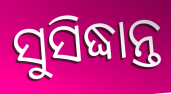
ସୁସିଦ୍ଧାନ୍ତ